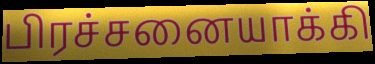
பிரச்சனையாக்கி